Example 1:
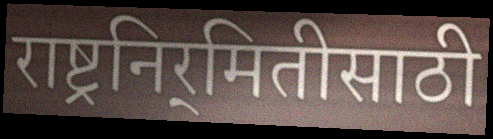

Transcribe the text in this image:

राष्ट्रनिर्मितीसाठी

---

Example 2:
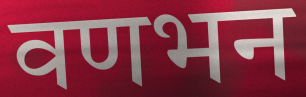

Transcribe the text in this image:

वणभन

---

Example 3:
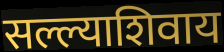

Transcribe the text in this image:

सल्ल्याशिवाय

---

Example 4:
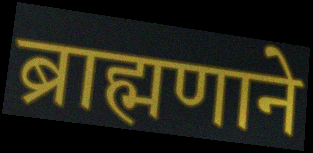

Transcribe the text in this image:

ब्राह्मणाने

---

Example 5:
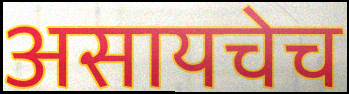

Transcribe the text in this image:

असायचेच